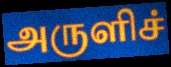
அருளிச்